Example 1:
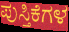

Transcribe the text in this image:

ಪುಸ್ತಿಕೆಗಳ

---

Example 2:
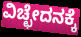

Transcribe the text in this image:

ವಿಚ್ಛೇದನಕ್ಕೆ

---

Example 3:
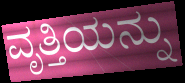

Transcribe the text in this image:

ವೃತ್ತಿಯನ್ನು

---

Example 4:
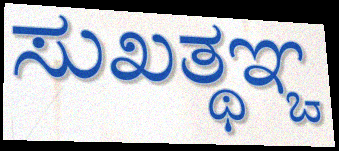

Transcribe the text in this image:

ಸುಖತ್ಥಞ್ಚ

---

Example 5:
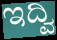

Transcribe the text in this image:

ಇದ್ವಿ